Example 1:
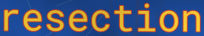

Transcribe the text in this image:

resection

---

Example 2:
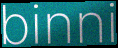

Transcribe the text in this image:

binni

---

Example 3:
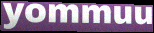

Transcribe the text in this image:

yommuu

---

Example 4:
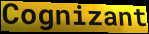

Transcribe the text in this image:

Cognizant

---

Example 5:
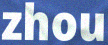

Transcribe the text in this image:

zhou